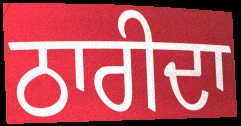
ਠਾਰੀਦਾ